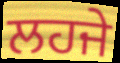
ਲਹਜੇ